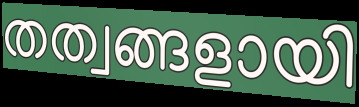
തത്വങ്ങളായി